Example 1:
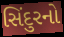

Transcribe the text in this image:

સિંદુરનો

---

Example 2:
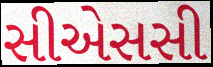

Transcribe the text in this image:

સીએસસી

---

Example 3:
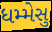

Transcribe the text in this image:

ધમ્મેસુ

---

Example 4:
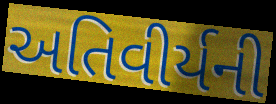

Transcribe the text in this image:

અતિવીર્યની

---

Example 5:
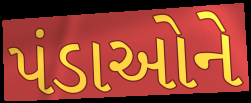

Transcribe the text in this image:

પંડાઓને